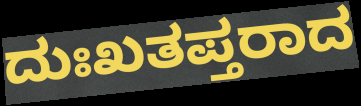
ದುಃಖತಪ್ತರಾದ